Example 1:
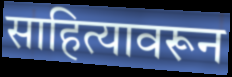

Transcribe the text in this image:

साहित्यावरून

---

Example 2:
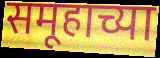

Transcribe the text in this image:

समूहाच्या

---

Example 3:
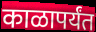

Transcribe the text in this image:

काळापर्यंत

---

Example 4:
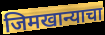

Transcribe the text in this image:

जिमखान्याचा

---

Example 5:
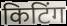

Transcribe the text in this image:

किटिंग